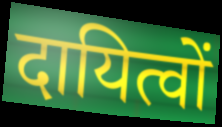
दायित्वों